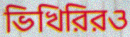
ভিখিরিরও